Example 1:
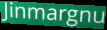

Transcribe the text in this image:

Jinmargnu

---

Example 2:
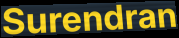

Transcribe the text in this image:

Surendran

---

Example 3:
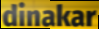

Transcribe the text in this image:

dinakar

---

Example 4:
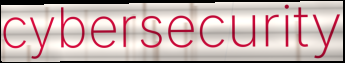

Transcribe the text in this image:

cybersecurity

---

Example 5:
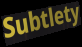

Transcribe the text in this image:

Subtlety